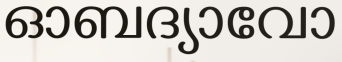
ഓബദ്യാവോ